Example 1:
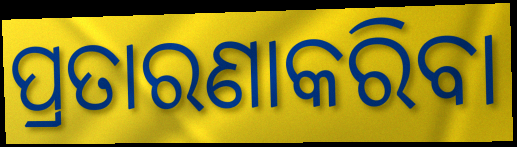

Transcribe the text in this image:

ପ୍ରତାରଣାକରିବା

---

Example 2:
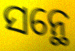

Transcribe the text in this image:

ସନ୍ଥେ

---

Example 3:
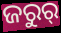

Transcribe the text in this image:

ଜରୁର୍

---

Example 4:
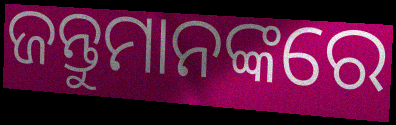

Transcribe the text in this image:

ଜନ୍ତୁମାନଙ୍କରେ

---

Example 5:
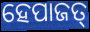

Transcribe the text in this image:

ହେପାଜତ୍